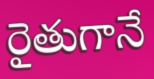
రైతుగానే